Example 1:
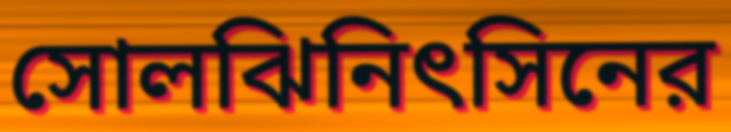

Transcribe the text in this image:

সোলঝিনিৎসিনের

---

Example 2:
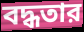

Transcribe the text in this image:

বদ্ধতার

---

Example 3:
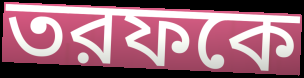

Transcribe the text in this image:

তরফকে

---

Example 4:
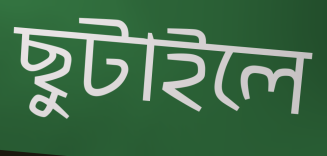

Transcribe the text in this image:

ছুটাইলে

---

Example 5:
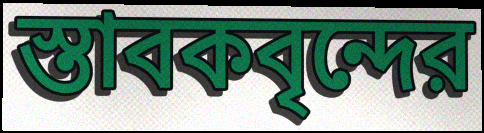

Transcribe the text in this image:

স্তাবকবৃন্দের